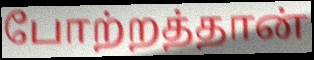
போற்றத்தான்